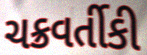
ચક્રવર્તીકી